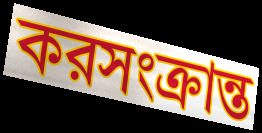
করসংক্রান্ত